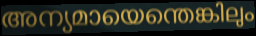
അന്യമായെന്തെങ്കിലും